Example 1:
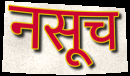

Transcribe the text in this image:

नसूच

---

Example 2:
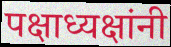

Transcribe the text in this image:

पक्षाध्यक्षांनी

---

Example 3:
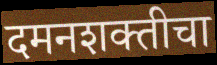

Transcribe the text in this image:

दमनशक्तीचा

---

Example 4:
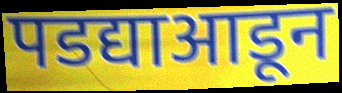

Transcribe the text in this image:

पडद्याआडून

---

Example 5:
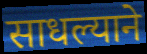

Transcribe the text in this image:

साधल्याने